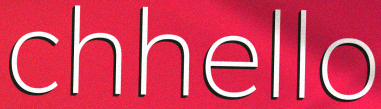
chhello